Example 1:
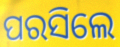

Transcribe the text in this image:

ପରସିଲେ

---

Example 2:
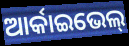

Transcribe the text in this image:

ଆର୍କାଇଭେଲ୍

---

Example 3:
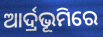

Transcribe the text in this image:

ଆର୍ଦ୍ରଭୂମିରେ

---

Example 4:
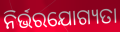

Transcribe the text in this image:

ନିର୍ଭରଯୋଗ୍ୟତା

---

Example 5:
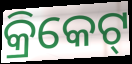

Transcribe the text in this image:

କ୍ରିକେଟ୍